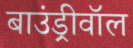
बाउंड्रीवॉल